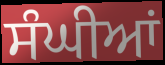
ਸੰਘੀਆਂ